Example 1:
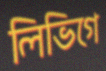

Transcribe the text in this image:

লিভিগে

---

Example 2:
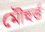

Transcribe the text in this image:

মৌহুৰ্ত্ত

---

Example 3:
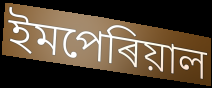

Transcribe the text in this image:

ইমপেৰিয়াল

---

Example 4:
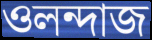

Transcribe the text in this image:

ওলন্দাজ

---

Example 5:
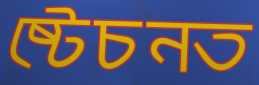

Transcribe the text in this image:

ষ্টেচনত